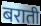
बराती